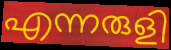
എന്നരുളി